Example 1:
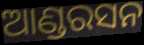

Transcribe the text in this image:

ଆଣ୍ଡରସନ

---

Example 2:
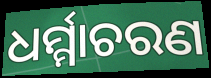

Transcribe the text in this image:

ଧର୍ମ୍ମାଚରଣ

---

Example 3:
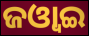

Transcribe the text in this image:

ଜଓ୍ବାଇ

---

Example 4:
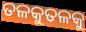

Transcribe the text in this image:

ତଳକୁତଳକୁ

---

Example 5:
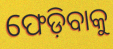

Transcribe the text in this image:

ଫେଡ଼ିବାକୁ